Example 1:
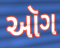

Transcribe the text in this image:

ઑગ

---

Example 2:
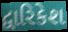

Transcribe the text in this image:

દ્વારિકેશ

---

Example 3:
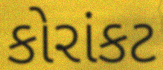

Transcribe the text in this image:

કોરાંકટ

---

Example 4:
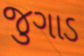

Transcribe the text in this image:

જુગાડ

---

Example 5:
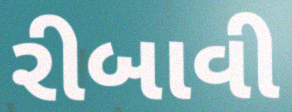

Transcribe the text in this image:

રીબાવી